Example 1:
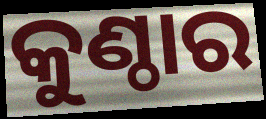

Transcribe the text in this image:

କୁଣ୍ଠାର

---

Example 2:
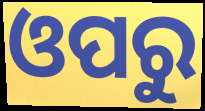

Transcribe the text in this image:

ଓପରୁ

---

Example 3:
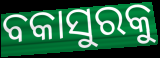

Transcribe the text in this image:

ବକାସୁରକୁ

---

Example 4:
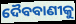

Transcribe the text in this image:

ଦୈବବାଣୀକୁ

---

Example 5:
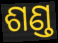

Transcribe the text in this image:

ଶଣ୍ଡ